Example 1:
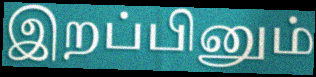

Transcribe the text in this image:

இறப்பினும்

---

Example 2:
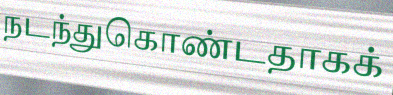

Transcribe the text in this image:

நடந்துகொண்டதாகக்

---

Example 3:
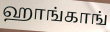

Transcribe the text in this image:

ஹாங்காங்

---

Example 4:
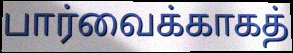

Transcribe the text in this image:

பார்வைக்காகத்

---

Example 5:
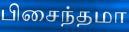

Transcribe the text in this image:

பிசைந்தமா